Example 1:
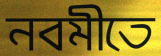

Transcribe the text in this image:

নবমীতে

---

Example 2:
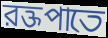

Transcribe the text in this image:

রক্তপাতে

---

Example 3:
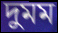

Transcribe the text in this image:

দুমম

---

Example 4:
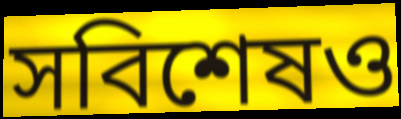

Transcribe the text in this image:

সবিশেষও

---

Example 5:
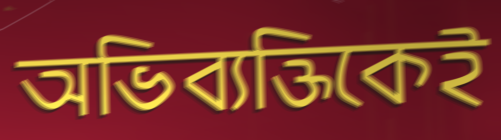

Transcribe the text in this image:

অভিব্যক্তিকেই